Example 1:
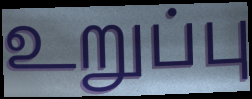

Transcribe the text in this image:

உறுப்பு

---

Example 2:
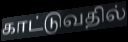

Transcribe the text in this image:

காட்டுவதில்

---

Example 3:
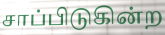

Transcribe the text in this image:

சாப்பிடுகின்ற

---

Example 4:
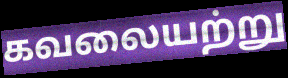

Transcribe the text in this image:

கவலையற்று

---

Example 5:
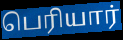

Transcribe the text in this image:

பெரியார்